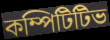
কম্পিটিটিভ